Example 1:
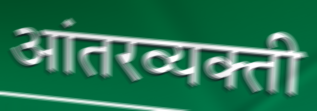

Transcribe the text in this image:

आंतरव्यक्ती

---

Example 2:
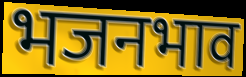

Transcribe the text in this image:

भजनभाव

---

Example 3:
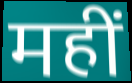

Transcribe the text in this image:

महीं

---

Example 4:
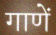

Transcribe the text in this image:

गाणें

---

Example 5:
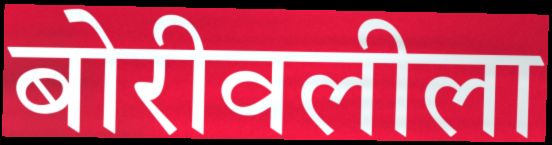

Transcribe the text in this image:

बोरीवलीला